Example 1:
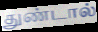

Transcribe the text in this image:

துண்டால்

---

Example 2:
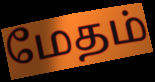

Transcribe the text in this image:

மேதம்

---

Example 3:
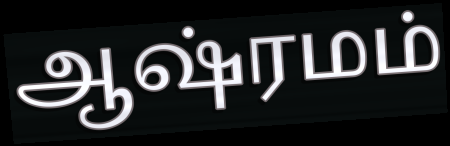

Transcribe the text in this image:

ஆஷ்ரமம்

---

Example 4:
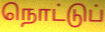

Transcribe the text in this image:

நொட்டுப்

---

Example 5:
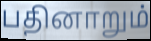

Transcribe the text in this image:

பதினாறும்